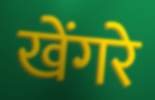
खेंगरे